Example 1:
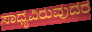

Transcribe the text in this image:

ಸಾಧ್ಯವಿರುವುದರ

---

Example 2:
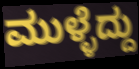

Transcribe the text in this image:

ಮುಳ್ಳೆದ್ದು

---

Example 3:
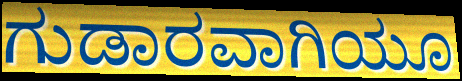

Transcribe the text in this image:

ಗುಡಾರವಾಗಿಯೂ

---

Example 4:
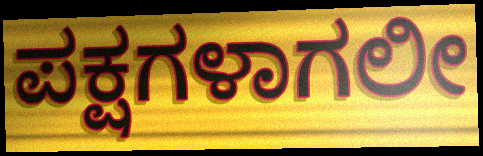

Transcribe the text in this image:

ಪಕ್ಷಗಳಾಗಲೀ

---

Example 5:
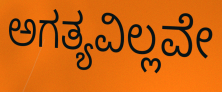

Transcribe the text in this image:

ಅಗತ್ಯವಿಲ್ಲವೇ